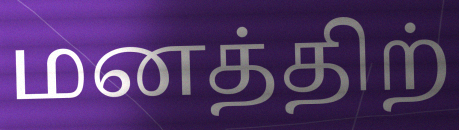
மனத்திற்